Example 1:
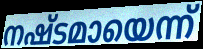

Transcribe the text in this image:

നഷ്ടമായെന്ന്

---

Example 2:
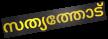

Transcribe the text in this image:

സത്യത്തോട്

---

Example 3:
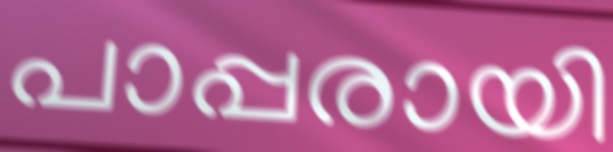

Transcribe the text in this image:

പാപ്പരായി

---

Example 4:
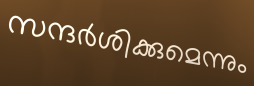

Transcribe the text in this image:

സന്ദർശിക്കുമെന്നും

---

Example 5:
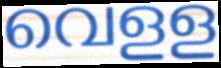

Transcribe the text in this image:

വെളള